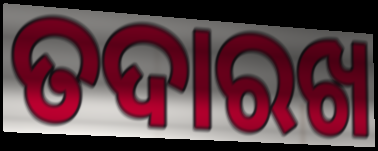
ତଦାରଖ